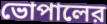
ভোপালের